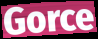
Gorce